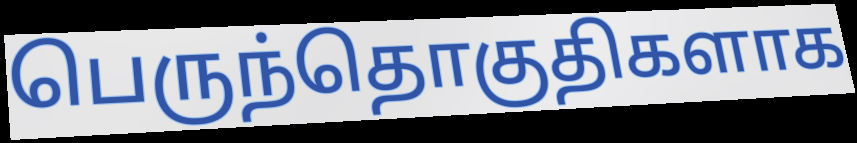
பெருந்தொகுதிகளாக